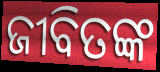
ଜୀବିତଙ୍କ